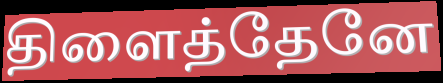
திளைத்தேனே